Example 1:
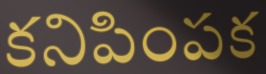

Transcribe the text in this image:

కనిపింపక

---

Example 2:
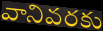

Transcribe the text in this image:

వానివరకు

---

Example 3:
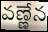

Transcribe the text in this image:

వణ్ణేన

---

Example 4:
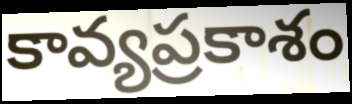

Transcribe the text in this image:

కావ్యప్రకాశం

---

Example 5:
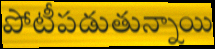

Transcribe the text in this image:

పోటీపడుతున్నాయి